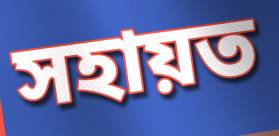
সহায়ত